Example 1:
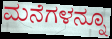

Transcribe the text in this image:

ಮನೆಗಳನ್ನೂ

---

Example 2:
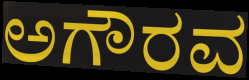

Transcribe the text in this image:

ಅಗೌರವ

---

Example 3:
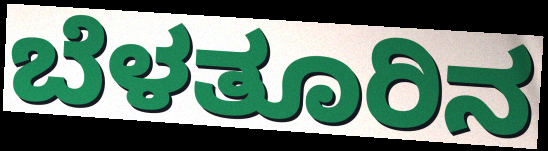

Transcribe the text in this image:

ಬೆಳತೂರಿನ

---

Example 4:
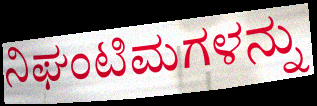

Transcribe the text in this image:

ನಿಘಂಟಿಮಗಳನ್ನು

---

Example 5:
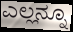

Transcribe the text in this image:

ಎಲ್ಲನ್ನೂ